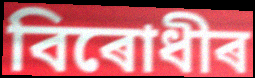
বিৰোধীৰ